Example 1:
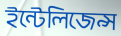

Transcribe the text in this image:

ইন্টেলিজেন্স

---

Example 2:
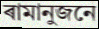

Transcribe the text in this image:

ৰামানুজনে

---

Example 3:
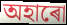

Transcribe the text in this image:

অহাৰো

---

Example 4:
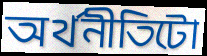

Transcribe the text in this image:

অৰ্থনীতিটো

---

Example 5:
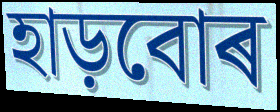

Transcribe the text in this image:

হাড়বোৰ